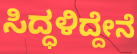
ಸಿದ್ಧಳಿದ್ದೇನೆ